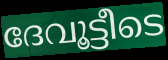
ദേവൂട്ടീടെ